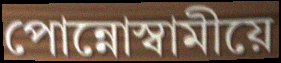
পোন্নোস্বামীয়ে